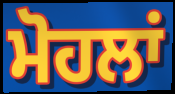
ਮੋਹਲਾਂ